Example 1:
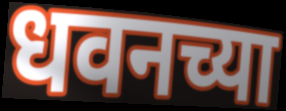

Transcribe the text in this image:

धवनच्या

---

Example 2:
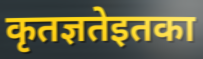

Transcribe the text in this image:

कृतज्ञतेइतका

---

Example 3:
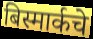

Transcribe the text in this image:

बिस्मार्कचे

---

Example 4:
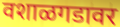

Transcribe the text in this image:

वशाळगडावर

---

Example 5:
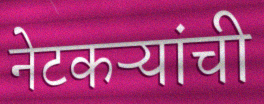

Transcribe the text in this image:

नेटकऱ्यांची